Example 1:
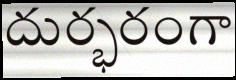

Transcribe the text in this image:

దుర్భరంగా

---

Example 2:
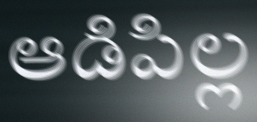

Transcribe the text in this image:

ఆడిపిల్ల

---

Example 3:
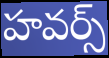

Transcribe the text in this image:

హవర్స్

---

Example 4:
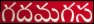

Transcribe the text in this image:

గదమగస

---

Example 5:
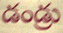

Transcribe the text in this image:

డండ్రు